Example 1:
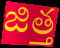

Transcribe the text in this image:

జిత్త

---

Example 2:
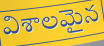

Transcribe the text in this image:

విశాలమైన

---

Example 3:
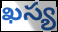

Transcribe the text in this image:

ఖస్య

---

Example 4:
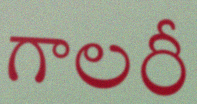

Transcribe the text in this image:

గాలరీ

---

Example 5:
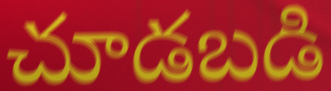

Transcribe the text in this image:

చూడబడి